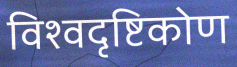
विश्वदृष्टिकोण